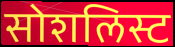
सोशलिस्ट